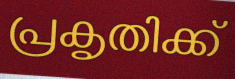
പ്രകൃതിക്ക്